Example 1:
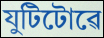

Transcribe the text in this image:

যুটিটোৱে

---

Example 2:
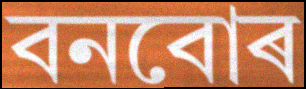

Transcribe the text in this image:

বনবোৰ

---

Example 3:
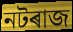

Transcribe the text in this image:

নটৰাজ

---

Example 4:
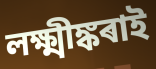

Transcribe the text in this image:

লক্ষ্মীঙ্কৰাই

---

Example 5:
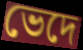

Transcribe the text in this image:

ভেদে